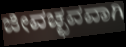
ಜೀವಚ್ಛವವಾಗಿ